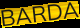
BARDA